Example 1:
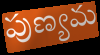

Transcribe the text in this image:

పుణ్యమ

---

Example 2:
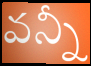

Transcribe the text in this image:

వన్నీ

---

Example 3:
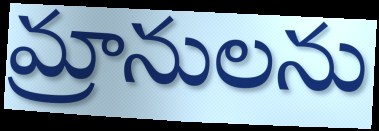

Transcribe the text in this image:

మ్రానులను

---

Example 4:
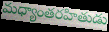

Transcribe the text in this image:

మధ్యాంతరహితుడు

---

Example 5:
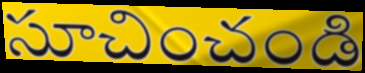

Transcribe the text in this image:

సూచించండి